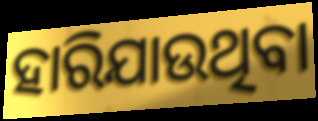
ହାରିଯାଉଥିବା